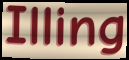
Illing